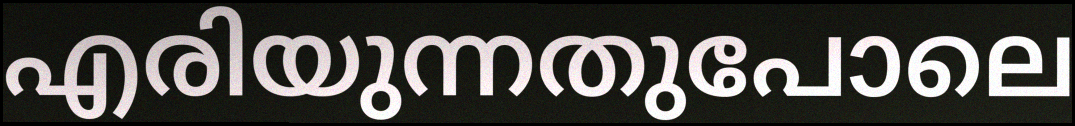
എരിയുന്നതുപോലെ